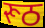
रूठ